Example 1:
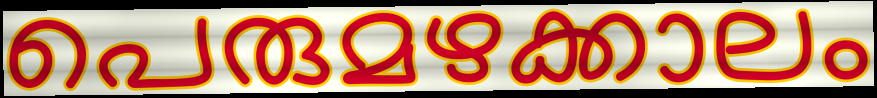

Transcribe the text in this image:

പെരുമഴക്കാലം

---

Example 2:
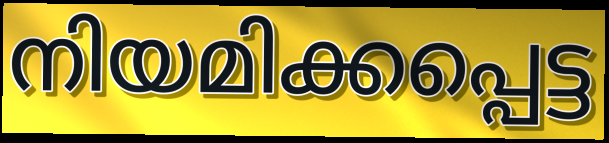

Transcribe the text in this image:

നിയമിക്കപ്പെട്ട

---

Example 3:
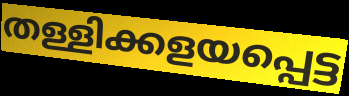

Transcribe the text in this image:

തള്ളിക്കളയപ്പെട്ട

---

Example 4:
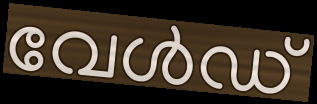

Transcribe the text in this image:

വേൾഡ്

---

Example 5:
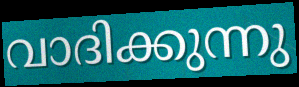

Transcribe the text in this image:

വാദിക്കുന്നു